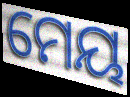
ମେୟ